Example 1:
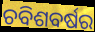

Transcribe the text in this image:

ଚବିଶବର୍ଷର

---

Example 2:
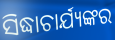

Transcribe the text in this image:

ସିଦ୍ଧାଚାର୍ଯ୍ୟଙ୍କର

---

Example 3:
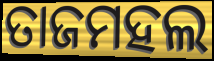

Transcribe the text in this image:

ତାଜମହଲ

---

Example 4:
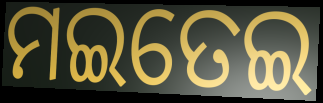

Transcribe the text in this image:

ମଇତେଇ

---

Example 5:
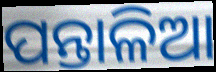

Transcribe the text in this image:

ପନ୍ତାଳିଆ